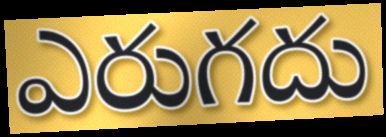
ఎరుగదు